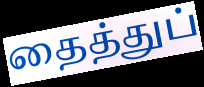
தைத்துப்